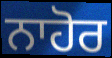
ਨਾਹੋਰ